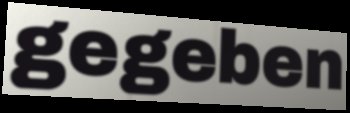
gegeben